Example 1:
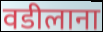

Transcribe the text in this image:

वडीलाना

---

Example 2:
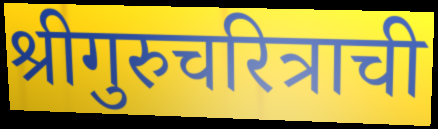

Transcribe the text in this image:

श्रीगुरुचरित्राची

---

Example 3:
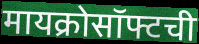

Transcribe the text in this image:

मायक्रोसॉफ्टची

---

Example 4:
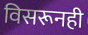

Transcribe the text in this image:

विसरूनही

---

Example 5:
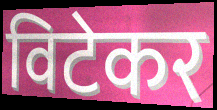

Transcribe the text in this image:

विटेकर